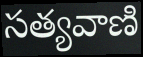
సత్యవాణి